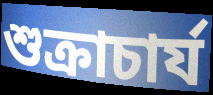
শুক্রাচার্য